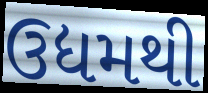
ઉદ્યમથી